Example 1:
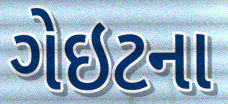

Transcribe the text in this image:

ગેઇટના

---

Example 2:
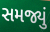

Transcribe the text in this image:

સમજ્યું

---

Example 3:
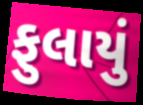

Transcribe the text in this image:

ફુલાયું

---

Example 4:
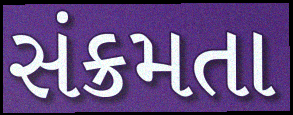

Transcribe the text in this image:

સંક્રમતા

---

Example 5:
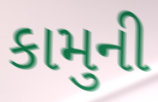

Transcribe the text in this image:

કામુની